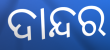
ଦାନ୍ଦର